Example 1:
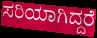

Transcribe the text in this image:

ಸರಿಯಾಗಿದ್ದರೆ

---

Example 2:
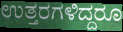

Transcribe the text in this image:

ಉತ್ತರಗಳಿದ್ದರೂ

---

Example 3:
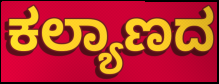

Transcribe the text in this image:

ಕಲ್ಯಾಣದ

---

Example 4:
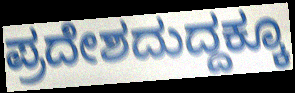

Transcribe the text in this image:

ಪ್ರದೇಶದುದ್ದಕ್ಕೂ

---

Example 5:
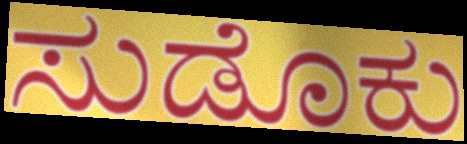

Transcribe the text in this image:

ಸುಡೊಕು